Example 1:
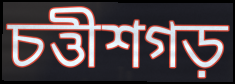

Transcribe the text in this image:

চত্তীশগড়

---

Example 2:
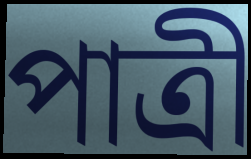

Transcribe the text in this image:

পাত্ৰী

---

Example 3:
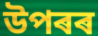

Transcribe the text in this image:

উপৰৰ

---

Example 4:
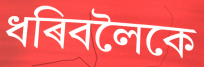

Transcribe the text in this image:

ধৰিবলৈকে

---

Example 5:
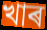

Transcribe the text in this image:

খাৰ